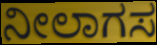
ನೀಲಾಗಸ